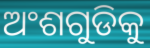
ଅଂଶଗୁଡିକୁ